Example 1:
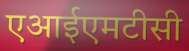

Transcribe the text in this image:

एआईएमटीसी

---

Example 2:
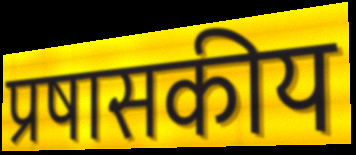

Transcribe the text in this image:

प्रषासकीय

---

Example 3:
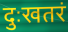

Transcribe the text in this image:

दुःखतरं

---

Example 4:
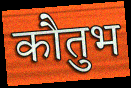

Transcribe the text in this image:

कौतुभ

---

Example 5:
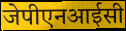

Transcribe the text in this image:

जेपीएनआईसी